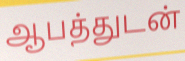
ஆபத்துடன்